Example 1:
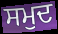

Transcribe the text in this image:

ਸਮੁਦ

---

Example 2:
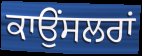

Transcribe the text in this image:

ਕਾਉਂਸਲਰਾਂ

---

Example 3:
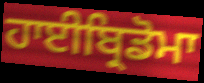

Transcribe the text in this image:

ਹਾਈਬ੍ਰਿਡੋਮਾ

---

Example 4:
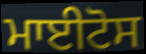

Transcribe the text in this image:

ਮਾਈਟੋਸ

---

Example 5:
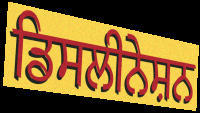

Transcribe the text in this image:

ਡਿਸਲੀਨੇਸ਼ਨ